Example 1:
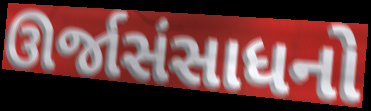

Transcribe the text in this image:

ઊર્જાસંસાધનો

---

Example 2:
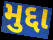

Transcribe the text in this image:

મુદ્દા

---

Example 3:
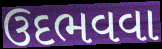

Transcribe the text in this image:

ઉદભવવા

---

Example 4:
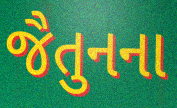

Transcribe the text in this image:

જૈતુનના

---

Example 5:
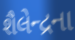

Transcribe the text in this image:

શૈલેન્દ્રના